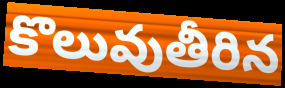
కొలువుతీరిన